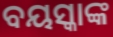
ବୟସ୍କାଙ୍କ